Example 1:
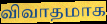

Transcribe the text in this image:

விவாதமாக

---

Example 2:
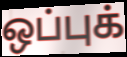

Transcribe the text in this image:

ஒப்புக்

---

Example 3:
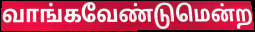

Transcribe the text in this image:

வாங்கவேண்டுமென்ற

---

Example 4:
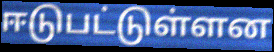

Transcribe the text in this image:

ஈடுபட்டுள்ளன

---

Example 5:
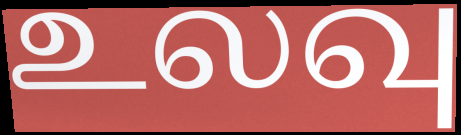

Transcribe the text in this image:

உலவு